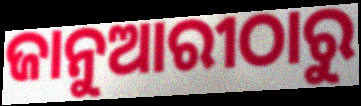
ଜାନୁଆରୀଠାରୁ